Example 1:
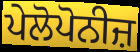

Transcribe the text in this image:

ਪੇਲੋਪੋਨੀਜ਼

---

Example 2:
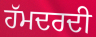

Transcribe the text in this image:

ਹੱਮਦਰਦੀ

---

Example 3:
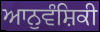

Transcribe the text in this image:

ਆਨੁਵੰਸ਼ਿਕੀ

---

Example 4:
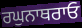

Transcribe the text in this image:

ਰਘੁਨਾਥਰਾਓ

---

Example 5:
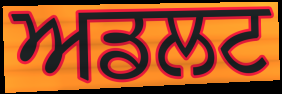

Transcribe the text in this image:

ਅਡਲਟ